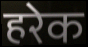
हरेक